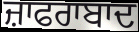
ਜ਼ਾਫਰਾਬਾਦ